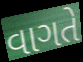
વાગતે